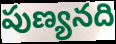
పుణ్యనది